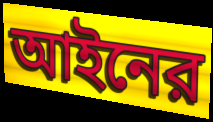
আইনের